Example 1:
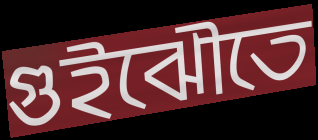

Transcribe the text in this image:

গুইঝৌতে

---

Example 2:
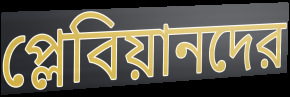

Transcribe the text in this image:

প্লেবিয়ানদের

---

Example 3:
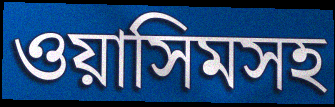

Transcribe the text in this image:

ওয়াসিমসহ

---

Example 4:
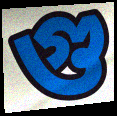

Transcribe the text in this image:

গু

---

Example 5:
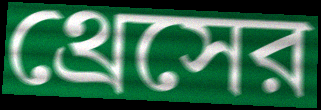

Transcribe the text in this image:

থ্রেসের